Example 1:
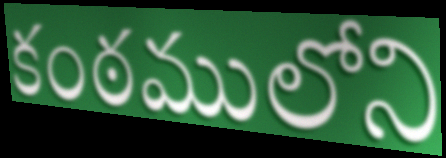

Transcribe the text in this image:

కంఠములోని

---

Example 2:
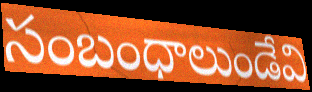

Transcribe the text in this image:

సంబంధాలుండేవి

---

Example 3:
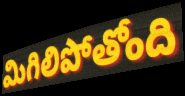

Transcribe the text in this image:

మిగిలిపోతోంది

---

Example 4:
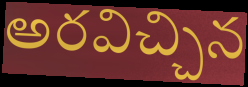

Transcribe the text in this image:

అరవిచ్చిన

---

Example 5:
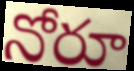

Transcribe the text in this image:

నోరూ